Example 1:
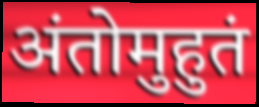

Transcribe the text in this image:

अंतोमुहुतं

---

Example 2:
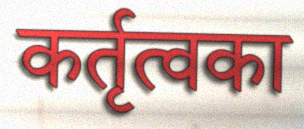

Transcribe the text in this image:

कर्तृत्वका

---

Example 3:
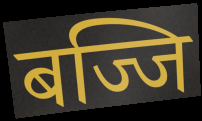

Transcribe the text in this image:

बज्जि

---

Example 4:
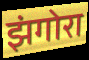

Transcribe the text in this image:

झंगोरा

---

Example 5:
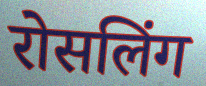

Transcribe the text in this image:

रोसलिंग